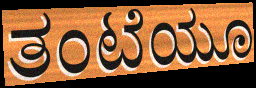
ತಂಟೆಯೂ